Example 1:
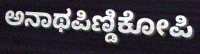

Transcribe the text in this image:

ಅನಾಥಪಿಣ್ಡಿಕೋಪಿ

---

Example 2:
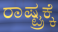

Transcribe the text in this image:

ರಾಷ್ಟ್ರಕ್ಕೆ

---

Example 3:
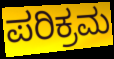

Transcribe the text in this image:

ಪರಿಕ್ರಮ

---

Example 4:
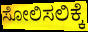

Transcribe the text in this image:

ಸೋಲಿಸಲಿಕ್ಕೆ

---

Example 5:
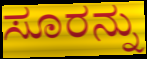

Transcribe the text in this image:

ಸೂರನ್ನು